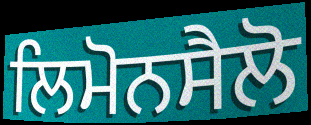
ਲਿਮੋਨਸੈਲੋ